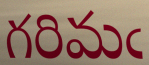
గరిమఁ